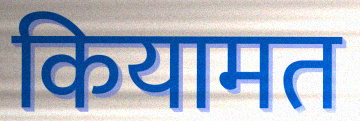
कियामत